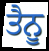
ਤੈਨੂ